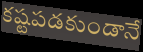
కష్టపడకుండానే